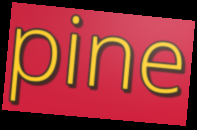
pine